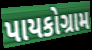
પાયકોગ્રામ